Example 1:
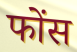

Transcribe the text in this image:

फोंस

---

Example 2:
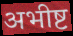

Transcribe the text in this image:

अभीष्ट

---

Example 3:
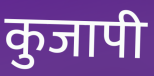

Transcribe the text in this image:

कुजापी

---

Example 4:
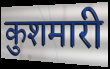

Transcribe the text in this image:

कुशमारी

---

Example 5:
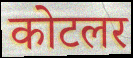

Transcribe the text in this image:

कोटलर